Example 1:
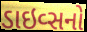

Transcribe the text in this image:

ડાઇવ્સનો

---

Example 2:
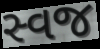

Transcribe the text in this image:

સ્વજ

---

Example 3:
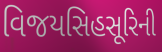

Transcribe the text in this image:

વિજયસિહસૂરિની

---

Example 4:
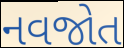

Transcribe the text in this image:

નવજોત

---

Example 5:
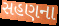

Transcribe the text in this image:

સહણના